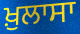
ਖ਼ੁਲਾਸਾ